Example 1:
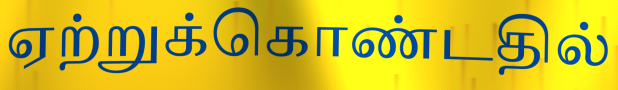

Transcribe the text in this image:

ஏற்றுக்கொண்டதில்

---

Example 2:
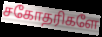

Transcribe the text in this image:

சகோதரிகளே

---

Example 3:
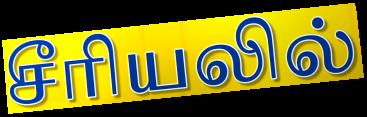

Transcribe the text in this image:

சீரியலில்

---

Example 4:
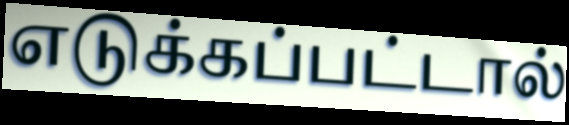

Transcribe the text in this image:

எடுக்கப்பட்டால்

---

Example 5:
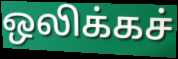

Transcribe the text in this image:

ஒலிக்கச்